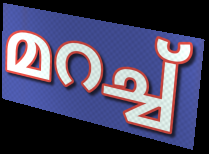
മറച്ച്